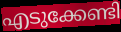
എടുക്കേണ്ടി